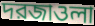
দরজাওলা